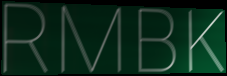
RMBK